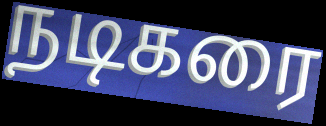
நடிகரை